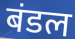
बंडल